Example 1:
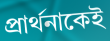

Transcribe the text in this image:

প্রার্থনাকেই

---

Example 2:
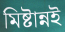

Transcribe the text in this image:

মিষ্টান্নই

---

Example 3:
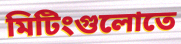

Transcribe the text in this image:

মিটিংগুলোতে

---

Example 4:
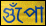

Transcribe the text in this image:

গুঁপো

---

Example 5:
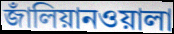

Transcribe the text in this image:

জাঁলিয়ানওয়ালা